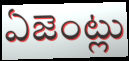
ఏజెంట్లు